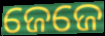
ଜେଜେ